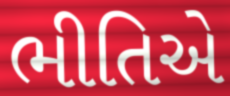
ભીતિએ